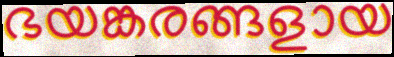
ഭയങ്കരങ്ങളായ